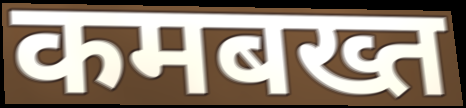
कमबख्त